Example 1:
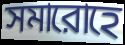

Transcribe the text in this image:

সমারোহে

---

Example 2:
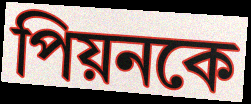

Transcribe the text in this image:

পিয়নকে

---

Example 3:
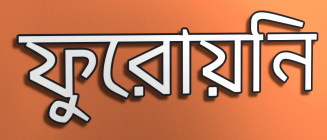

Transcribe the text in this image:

ফুরোয়নি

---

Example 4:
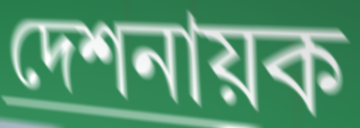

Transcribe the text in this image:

দেশনায়ক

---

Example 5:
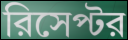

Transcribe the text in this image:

রিসেপ্টর